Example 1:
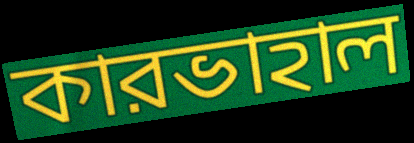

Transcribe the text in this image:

কারভাহাল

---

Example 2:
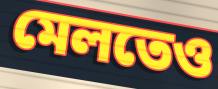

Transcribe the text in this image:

মেলতেও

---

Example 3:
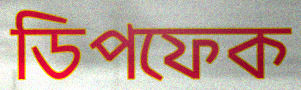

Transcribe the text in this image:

ডিপফেক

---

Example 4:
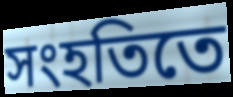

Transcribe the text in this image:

সংহতিতে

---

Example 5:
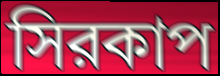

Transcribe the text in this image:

সিরকাপ